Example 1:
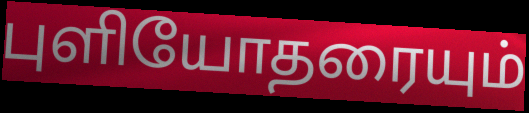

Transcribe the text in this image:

புளியோதரையும்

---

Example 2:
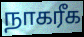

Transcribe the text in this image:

நாகரீக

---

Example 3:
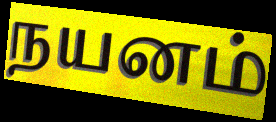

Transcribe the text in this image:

நயனம்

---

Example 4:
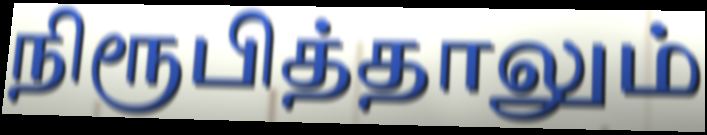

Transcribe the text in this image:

நிரூபித்தாலும்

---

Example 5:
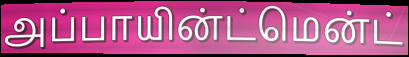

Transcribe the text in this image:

அப்பாயின்ட்மென்ட்